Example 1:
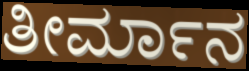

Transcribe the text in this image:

ತೀರ್ಮಾನ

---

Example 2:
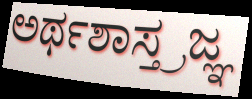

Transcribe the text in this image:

ಅರ್ಥಶಾಸ್ತ್ರಜ್ಞ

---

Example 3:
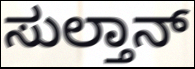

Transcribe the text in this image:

ಸುಲ್ತಾನ್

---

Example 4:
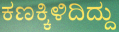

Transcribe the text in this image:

ಕಣಕ್ಕಿಳಿದಿದ್ದು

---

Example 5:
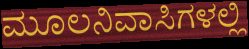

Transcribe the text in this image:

ಮೂಲನಿವಾಸಿಗಳಲ್ಲಿ